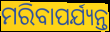
ମରିବାପର୍ଯ୍ୟନ୍ତ